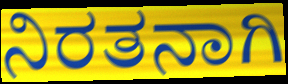
ನಿರತನಾಗಿ